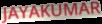
JAYAKUMAR